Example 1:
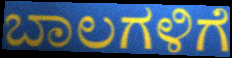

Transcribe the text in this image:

ಬಾಲಗಳಿಗೆ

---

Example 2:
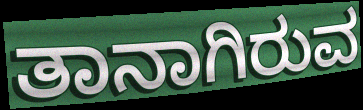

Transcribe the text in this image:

ತಾನಾಗಿರುವ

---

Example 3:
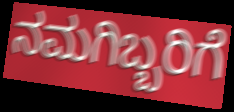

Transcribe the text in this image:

ನಮಗಿಬ್ಬರಿಗೆ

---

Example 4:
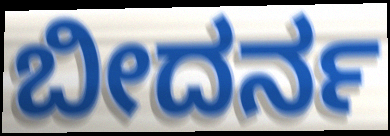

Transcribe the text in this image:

ಬೀದರ್ನ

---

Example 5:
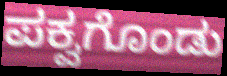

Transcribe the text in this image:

ಪಕ್ವಗೊಂಡು